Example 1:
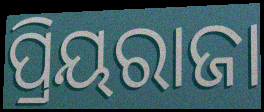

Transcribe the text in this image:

ପ୍ରିୟରାଜା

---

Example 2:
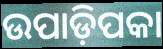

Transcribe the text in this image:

ଉପାଡ଼ିପକା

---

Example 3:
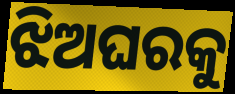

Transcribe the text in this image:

ଝିଅଘରକୁ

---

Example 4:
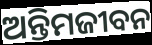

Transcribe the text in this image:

ଅନ୍ତିମଜୀବନ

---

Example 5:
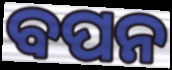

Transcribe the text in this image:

ବପନ